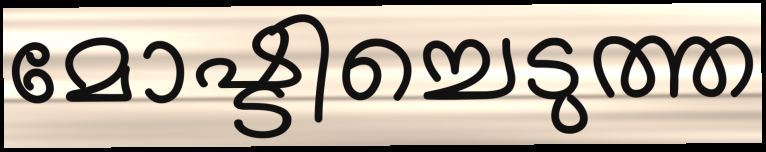
മോഷ്ടിച്ചെടുത്ത